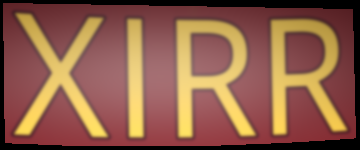
XIRR